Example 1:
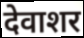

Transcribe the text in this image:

देवाशर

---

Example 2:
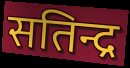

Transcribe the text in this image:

सतिन्द्र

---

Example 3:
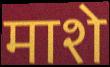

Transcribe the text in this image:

माशे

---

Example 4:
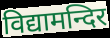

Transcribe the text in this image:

विद्यामन्दिर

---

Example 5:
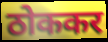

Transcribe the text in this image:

ठोककर